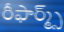
రీఫార్మ్స్